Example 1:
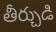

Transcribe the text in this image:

తీర్చుడి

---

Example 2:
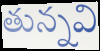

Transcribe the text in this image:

తున్నవి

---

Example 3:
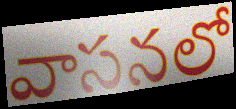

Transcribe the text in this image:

వాసనలో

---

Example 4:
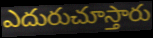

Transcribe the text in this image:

ఎదురుచూస్తారు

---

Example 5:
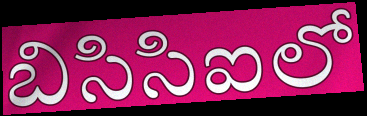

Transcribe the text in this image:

బిసిసిఐలో